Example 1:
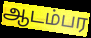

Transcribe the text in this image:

ஆடம்பர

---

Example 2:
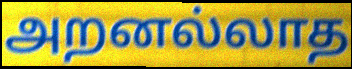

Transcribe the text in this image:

அறனல்லாத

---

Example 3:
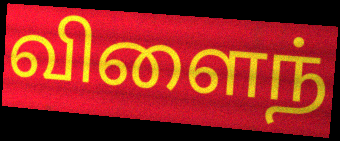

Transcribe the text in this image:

விளைந்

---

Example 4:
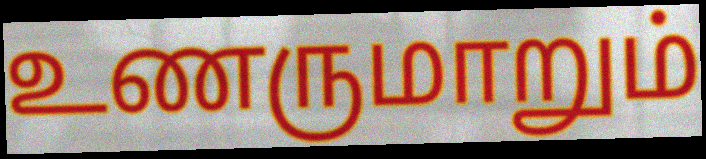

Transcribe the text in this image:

உணருமாறும்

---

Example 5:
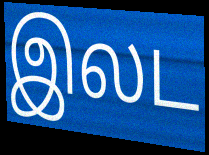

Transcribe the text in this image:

இலட